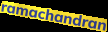
ramachandran